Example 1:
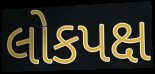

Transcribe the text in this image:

લોકપક્ષ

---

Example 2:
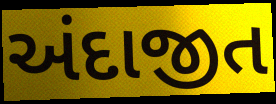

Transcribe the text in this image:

અંદાજીત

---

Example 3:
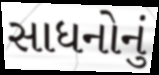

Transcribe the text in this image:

સાધનોનું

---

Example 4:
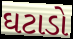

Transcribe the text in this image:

ઘટાડો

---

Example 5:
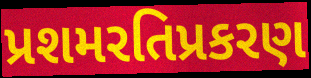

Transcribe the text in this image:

પ્રશમરતિપ્રકરણ